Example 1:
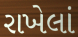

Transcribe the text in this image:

રાખેલાં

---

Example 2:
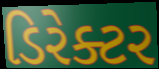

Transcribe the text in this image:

ડિરેક્ટર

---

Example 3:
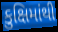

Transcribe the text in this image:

કુક્ષિમાંથી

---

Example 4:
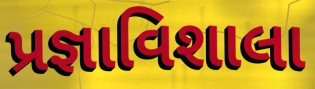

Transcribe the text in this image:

પ્રજ્ઞાવિશાલા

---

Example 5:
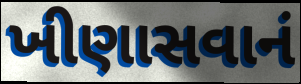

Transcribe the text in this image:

ખીણાસવાનં